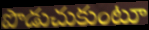
పొడుచుకుంటూ